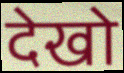
देखो